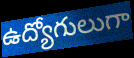
ఉద్యోగులుగా